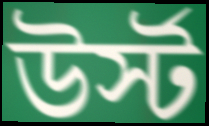
উর্স্ট